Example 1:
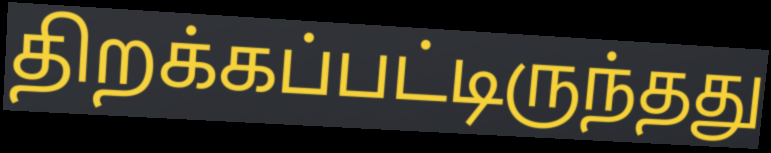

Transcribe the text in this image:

திறக்கப்பட்டிருந்தது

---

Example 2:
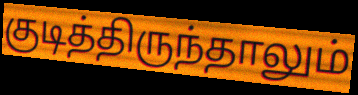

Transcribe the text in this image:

குடித்திருந்தாலும்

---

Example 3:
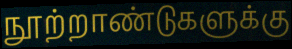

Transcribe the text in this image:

நூற்றாண்டுகளுக்கு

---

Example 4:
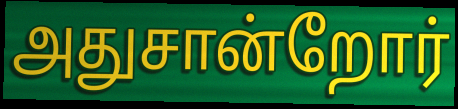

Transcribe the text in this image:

அதுசான்றோர்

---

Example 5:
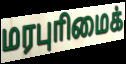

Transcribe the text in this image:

மரபுரிமைக்